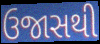
ઉજાસથી